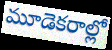
మూడెకరాల్లో